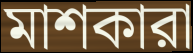
মাশকারা